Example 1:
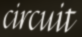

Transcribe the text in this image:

circuit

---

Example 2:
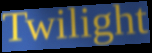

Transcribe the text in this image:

Twilight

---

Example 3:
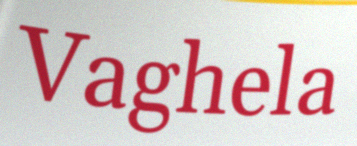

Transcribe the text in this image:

Vaghela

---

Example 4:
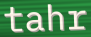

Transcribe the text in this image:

tahr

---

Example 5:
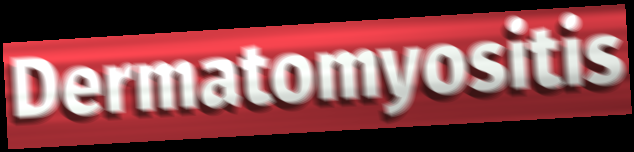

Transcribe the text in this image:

Dermatomyositis